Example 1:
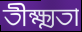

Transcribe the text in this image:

তীক্ষ্মতা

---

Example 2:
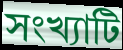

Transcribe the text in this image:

সংখ্যাটি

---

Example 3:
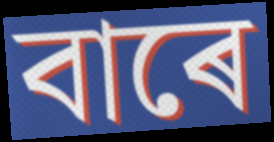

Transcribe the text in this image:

বাৰে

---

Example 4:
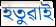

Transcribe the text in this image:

হতুৱাই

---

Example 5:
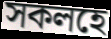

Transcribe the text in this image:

সকলহে